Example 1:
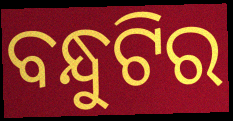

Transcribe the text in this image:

ବନ୍ଧୁଟିର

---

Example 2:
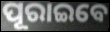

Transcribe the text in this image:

ପୂରାଇବେ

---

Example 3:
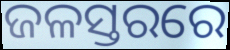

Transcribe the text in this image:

ଜଳସ୍ତରରେ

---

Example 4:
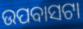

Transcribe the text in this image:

ଉପବାସଟା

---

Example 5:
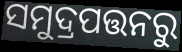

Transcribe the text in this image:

ସମୁଦ୍ରପତ୍ତନରୁ